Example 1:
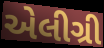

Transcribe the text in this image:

એલીગ્રી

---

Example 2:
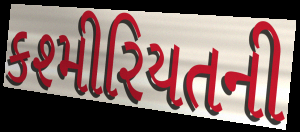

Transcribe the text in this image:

કશ્મીરિયતની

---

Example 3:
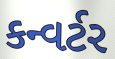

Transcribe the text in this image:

કન્વર્ટર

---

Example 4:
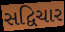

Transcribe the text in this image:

સદ્વિચાર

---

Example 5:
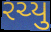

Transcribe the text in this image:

રચ્યુ